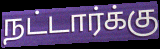
நட்டார்க்கு